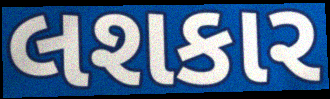
લશકાર